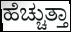
ಹೆಚ್ಚುತ್ತಾ